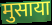
मुसाया